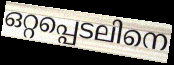
ഒറ്റപ്പെടലിനെ